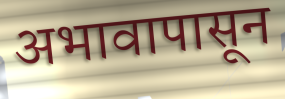
अभावापासून